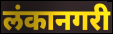
लंकानगरी